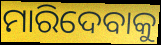
ମାରିଦେବାକୁ